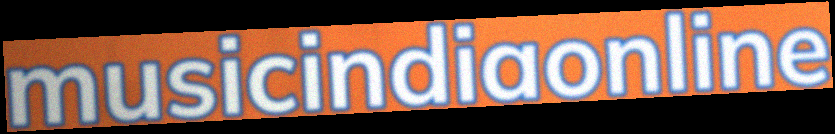
musicindiaonline